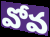
వోవ